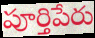
పూర్తిపేరు